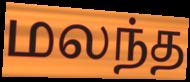
மலந்த